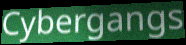
Cybergangs